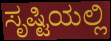
ಸೃಷ್ಟಿಯಲ್ಲಿ